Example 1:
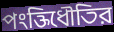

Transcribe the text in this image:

পংক্তিধৌতির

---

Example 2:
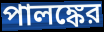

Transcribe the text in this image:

পালঙ্কের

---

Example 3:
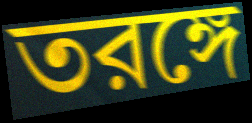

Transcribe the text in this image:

তরঙ্গে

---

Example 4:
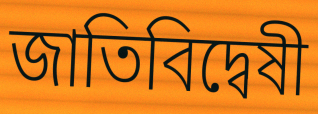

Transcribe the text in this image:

জাতিবিদ্বেষী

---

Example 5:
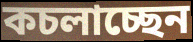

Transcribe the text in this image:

কচলাচ্ছেন